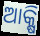
ଆକ୍ଷି